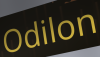
Odilon